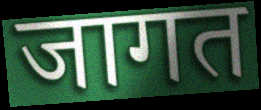
जागत